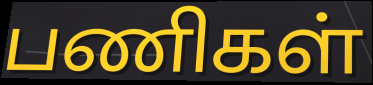
பணிகள்